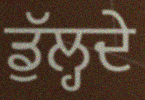
ਡੁੱਲ੍ਹਦੇ